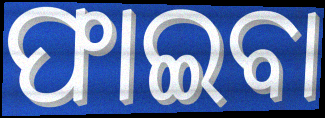
ଫାଇବା